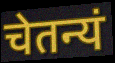
चेतन्यं